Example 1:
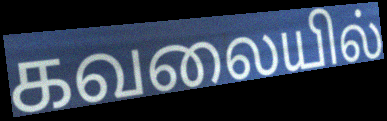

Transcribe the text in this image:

கவலையில்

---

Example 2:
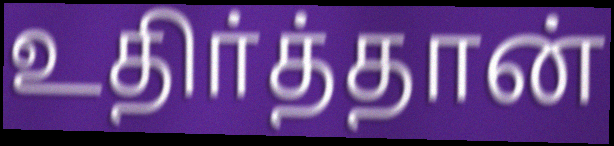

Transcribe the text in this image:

உதிர்த்தான்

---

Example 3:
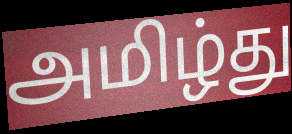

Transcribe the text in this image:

அமிழ்து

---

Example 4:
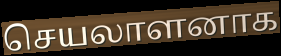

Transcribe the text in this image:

செயலாளனாக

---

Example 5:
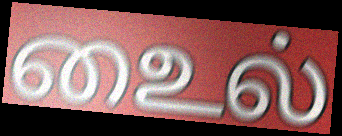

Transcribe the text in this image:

உைல்